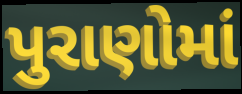
પુરાણોમાં